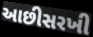
આછીસરખી